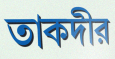
তাকদীর